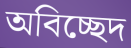
অবিচ্ছেদ